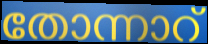
തോന്നാറ്